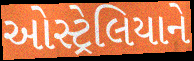
ઓસ્ટ્રેલિયાને